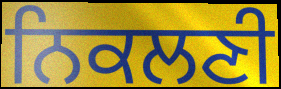
ਨਿਕਲਣੀ